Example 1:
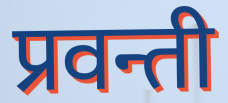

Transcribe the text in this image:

प्रवन्ती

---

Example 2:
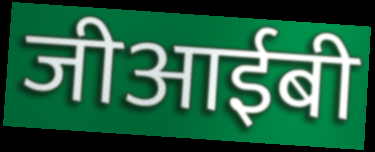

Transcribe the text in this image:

जीआईबी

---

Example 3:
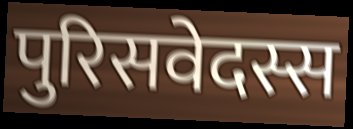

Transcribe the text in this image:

पुरिसवेदस्स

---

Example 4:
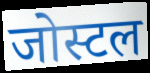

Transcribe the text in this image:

जोस्टल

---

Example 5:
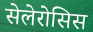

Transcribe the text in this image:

सेलेरोसिस